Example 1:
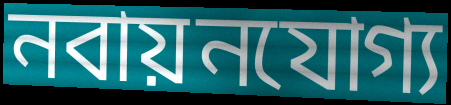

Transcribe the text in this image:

নবায়নযোগ্য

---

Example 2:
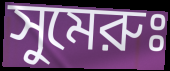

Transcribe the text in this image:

সুমেরুঃ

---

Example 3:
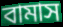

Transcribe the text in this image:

বামাস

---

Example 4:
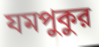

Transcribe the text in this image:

যমপুকুর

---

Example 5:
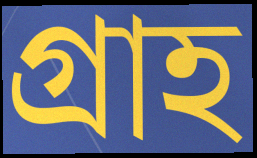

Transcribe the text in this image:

গ্রাহ